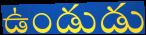
ఉండుడు